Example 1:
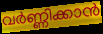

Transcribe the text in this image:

വർണ്ണിക്കാൻ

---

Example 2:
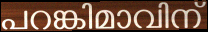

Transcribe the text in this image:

പറങ്കിമാവിന്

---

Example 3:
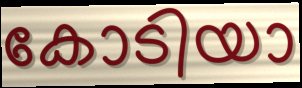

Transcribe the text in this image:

കോടിയാ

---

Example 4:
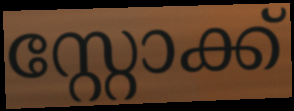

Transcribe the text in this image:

സ്റ്റോക്ക്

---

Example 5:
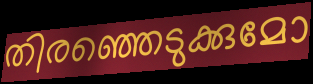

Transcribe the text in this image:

തിരഞ്ഞെടുക്കുമോ